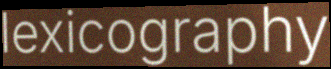
lexicography